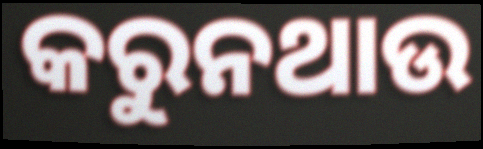
କରୁନଥାଉ